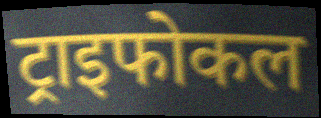
ट्राइफोकल